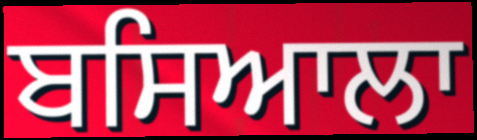
ਬਸਿਆਲਾ